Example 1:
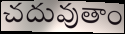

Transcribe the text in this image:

చదువుతాం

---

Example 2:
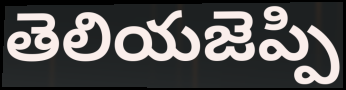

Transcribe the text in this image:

తెలియజెప్పి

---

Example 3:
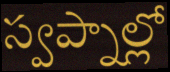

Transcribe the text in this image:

స్వప్నాల్లో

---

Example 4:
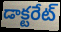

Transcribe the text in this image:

డాక్టరేట్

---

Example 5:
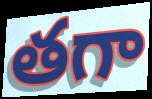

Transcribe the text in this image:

తగా